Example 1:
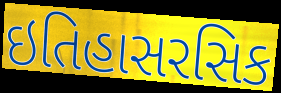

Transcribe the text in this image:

ઇતિહાસરસિક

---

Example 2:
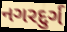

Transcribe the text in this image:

નગરદુર્ગ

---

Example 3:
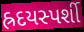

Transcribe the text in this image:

હ્રદયસ્પર્શી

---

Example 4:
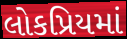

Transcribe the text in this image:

લોકપ્રિયમાં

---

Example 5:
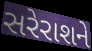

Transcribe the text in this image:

સરેરાશને